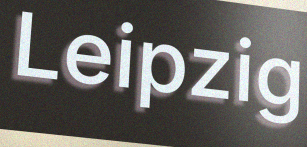
Leipzig